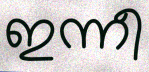
ഇന്നീ